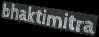
bhaktimitra